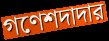
গণেশদাদার